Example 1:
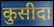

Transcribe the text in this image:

कुसीदा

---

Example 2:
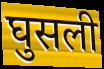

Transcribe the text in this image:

घुसली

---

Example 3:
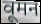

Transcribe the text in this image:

वूमन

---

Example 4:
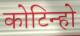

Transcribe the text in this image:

कोटिन्हो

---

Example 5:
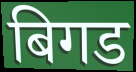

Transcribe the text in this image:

बिगड